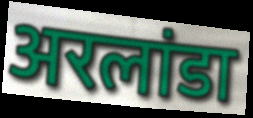
अरलांडा